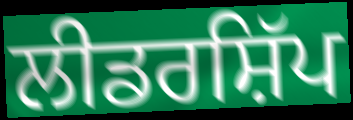
ਲੀਡਰਸ਼ਿੱਪ